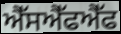
ਐੱਸਐੱਫਐੱਫ